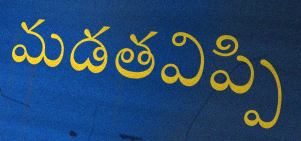
మడతవిప్పి